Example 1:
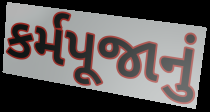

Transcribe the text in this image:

કર્મપૂજાનું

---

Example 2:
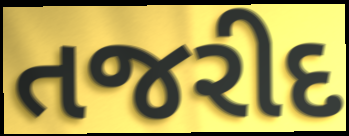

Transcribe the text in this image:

તજરીદ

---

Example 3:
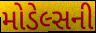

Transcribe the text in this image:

મોડેલ્સની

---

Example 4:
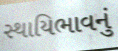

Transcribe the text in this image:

સ્થાયિભાવનું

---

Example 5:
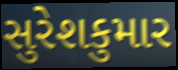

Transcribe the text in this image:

સુરેશકુમાર